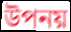
উপনয়